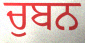
ਚੁਬਨ